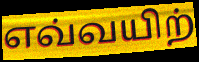
எவ்வயிற்